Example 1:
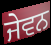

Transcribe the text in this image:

ਜੇਵਨ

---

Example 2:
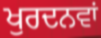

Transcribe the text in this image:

ਖੁਰਦਨਵਾਂ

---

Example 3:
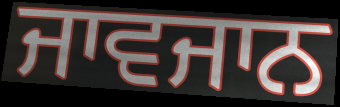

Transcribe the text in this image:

ਜਾਵਜਾਨ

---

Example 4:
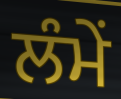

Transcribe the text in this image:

ਲੰਮੇਂ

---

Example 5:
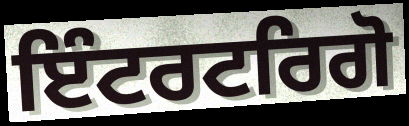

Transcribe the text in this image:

ਇੰਟਰਟਰਿਗੋ